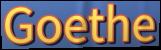
Goethe